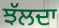
ਝੱਲਦਾ